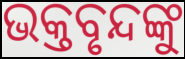
ଭକ୍ତବୃନ୍ଦଙ୍କୁ